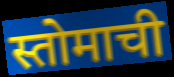
स्तोमाची